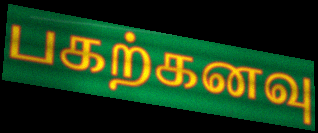
பகற்கனவு